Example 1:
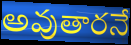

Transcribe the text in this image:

అవుతారనే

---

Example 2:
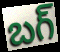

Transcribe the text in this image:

బగ్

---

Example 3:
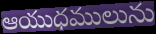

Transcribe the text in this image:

ఆయుధములును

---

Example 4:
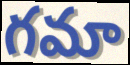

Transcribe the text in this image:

గమా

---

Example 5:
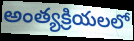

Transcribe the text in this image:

అంత్యక్రియలలో